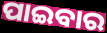
ପାଇବାର